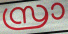
സ്രാ